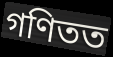
গণিতত